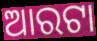
ଆରଟା